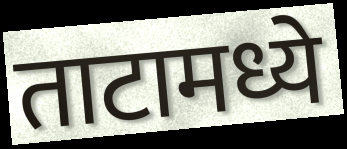
ताटामध्ये